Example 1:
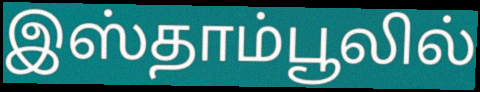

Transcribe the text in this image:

இஸ்தாம்பூலில்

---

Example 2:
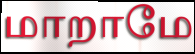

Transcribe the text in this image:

மாறாமே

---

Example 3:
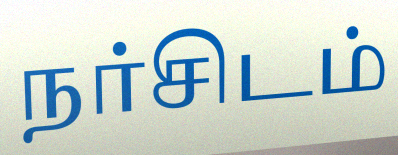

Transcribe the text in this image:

நர்சிடம்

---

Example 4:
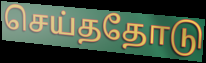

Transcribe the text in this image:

செய்ததோடு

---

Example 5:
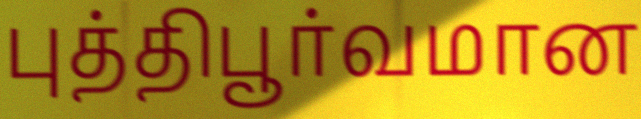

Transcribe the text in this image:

புத்திபூர்வமான